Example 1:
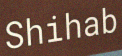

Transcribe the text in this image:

Shihab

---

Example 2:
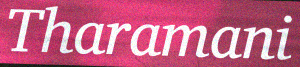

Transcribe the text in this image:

Tharamani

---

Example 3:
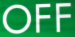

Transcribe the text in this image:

OFF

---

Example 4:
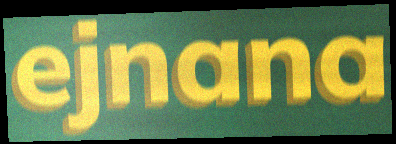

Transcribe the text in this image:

ejnana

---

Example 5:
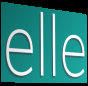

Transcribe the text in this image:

elle